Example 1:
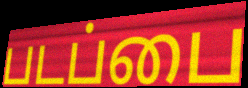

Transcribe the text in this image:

படப்பை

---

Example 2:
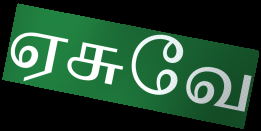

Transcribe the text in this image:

ஏசுவே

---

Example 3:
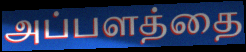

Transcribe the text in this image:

அப்பளத்தை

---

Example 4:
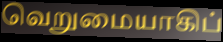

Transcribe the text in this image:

வெறுமையாகிப்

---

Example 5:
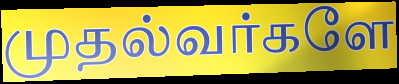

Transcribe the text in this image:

முதல்வர்களே